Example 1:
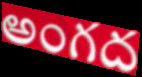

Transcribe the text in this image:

అంగద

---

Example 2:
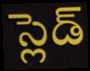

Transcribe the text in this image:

స్లెడ్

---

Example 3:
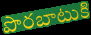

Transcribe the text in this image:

పొరబాటుకి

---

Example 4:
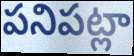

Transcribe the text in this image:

పనిపట్లా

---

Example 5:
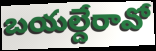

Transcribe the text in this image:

బయల్దేరావో